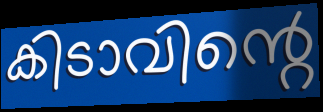
കിടാവിന്റെ